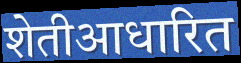
शेतीआधारित